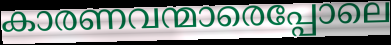
കാരണവന്മാരെപ്പോലെ